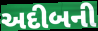
અદીબની